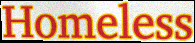
Homeless